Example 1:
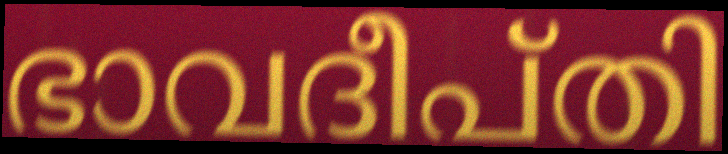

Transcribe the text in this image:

ഭാവദീപ്തി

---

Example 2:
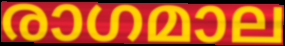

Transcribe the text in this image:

രാഗമാല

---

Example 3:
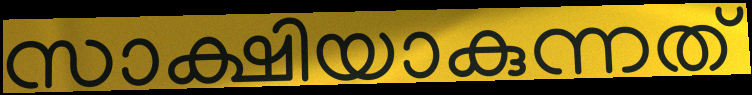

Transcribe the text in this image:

സാക്ഷിയാകുന്നത്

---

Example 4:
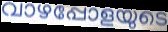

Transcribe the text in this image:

വാഴപ്പോളയുടെ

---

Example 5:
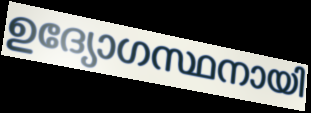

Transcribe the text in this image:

ഉദ്യോഗസ്ഥനായി